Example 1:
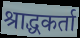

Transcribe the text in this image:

श्राद्धकर्ता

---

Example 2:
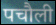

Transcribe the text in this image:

पचौली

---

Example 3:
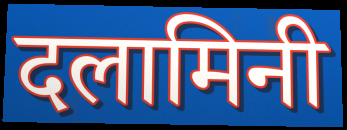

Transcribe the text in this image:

दलामिनी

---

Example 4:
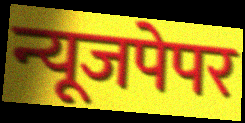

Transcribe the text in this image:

न्‍यूजपेपर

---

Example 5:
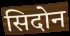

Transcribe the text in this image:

सिदोन